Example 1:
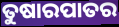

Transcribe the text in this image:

ତୁଷାରପାତର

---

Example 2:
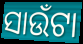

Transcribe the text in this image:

ସାଉଁଟା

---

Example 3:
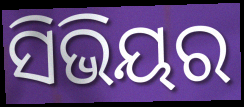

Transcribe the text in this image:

ସିଭିୟର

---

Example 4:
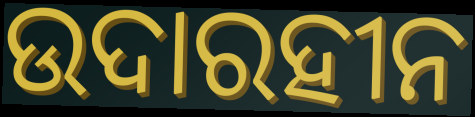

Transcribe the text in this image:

ଉଦାରହୀନ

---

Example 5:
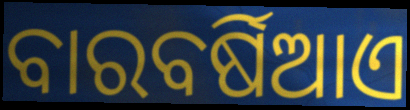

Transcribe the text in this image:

ବାରବର୍ଷିଆଏ